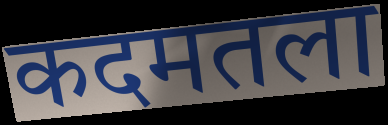
कदमतला